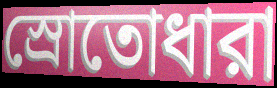
স্রোতোধারা